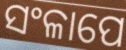
ସଂଳାପେ